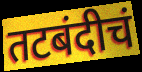
तटबंदीचं